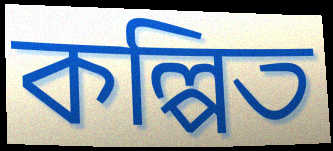
কল্পিত